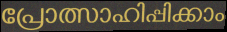
പ്രോത്സാഹിപ്പിക്കാം